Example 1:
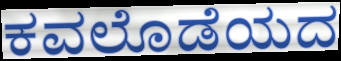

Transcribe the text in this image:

ಕವಲೊಡೆಯದ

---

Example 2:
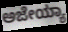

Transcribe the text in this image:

ಅಜೇಯ್ಯಾ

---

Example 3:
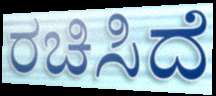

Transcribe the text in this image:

ರಚಿಸಿದೆ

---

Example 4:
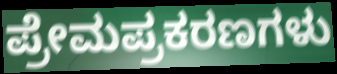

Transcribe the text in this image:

ಪ್ರೇಮಪ್ರಕರಣಗಳು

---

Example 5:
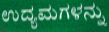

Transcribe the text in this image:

ಉದ್ಯಮಗಳನ್ನು